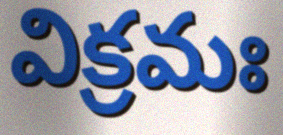
విక్రమః